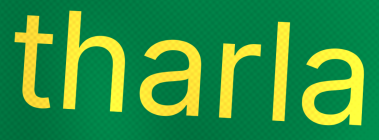
tharla